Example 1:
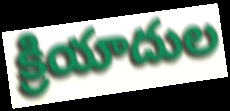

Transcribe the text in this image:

క్రియాదుల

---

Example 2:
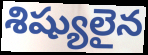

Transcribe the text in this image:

శిష్యులైన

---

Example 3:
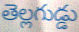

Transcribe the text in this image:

తెల్లగుడ్డు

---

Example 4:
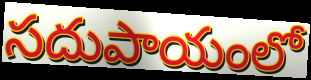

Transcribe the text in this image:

సదుపాయంలో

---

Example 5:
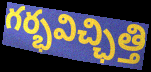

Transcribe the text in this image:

గర్భవిచ్ఛిత్తి